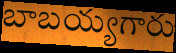
బాబయ్యగారు